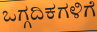
ಒಗ್ಗದಿಕಗಳಿಗೆ